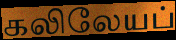
கலிலேயப்